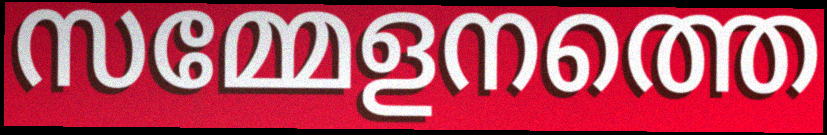
സമ്മേളനത്തെ